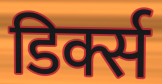
डिर्क्स